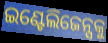
ଇଣ୍ଟେଲିଜେନ୍ସକୁ